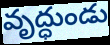
వృద్ధుండు